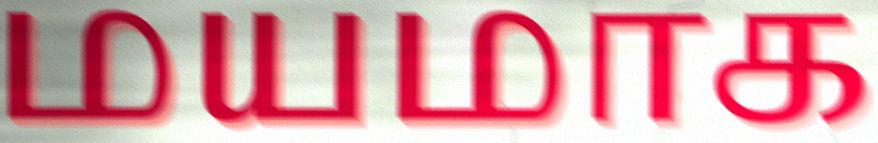
மயமாக